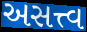
અસત્ત્વ